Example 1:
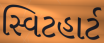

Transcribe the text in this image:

સ્વિટહાર્ટ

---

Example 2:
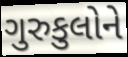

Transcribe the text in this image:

ગુરુકુલોને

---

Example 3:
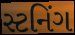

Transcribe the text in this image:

સ્ટનિંગ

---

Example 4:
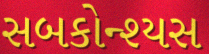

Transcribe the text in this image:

સબકોન્શ્યસ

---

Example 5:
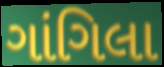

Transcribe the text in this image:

ગાંગિલા